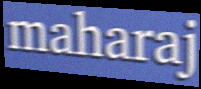
maharaj